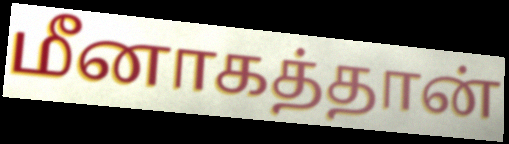
மீனாகத்தான்